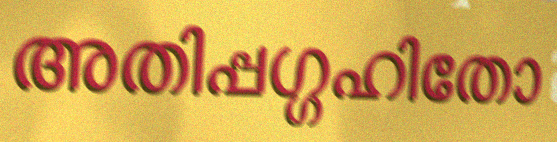
അതിപ്പഗ്ഗഹിതോ